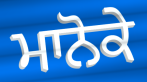
ਮਾਨੋਕੇ